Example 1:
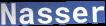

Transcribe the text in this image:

Nasser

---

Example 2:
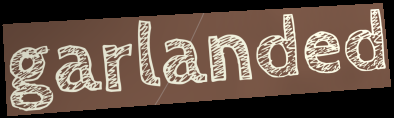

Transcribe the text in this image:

garlanded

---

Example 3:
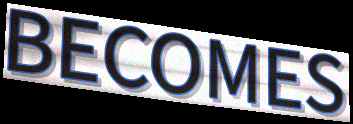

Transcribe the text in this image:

BECOMES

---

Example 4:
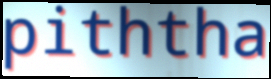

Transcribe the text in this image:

piththa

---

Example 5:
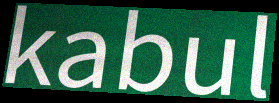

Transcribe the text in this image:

kabul